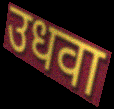
उधवा